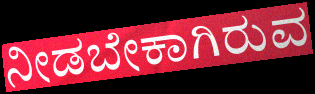
ನೀಡಬೇಕಾಗಿರುವ